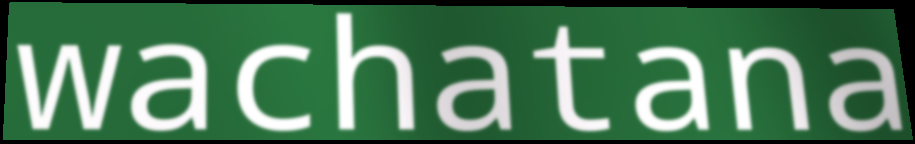
wachatana